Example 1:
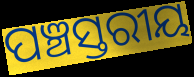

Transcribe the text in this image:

ପଞ୍ଚସ୍ତରୀୟ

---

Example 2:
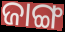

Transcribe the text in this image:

ଜାଙ୍ଗ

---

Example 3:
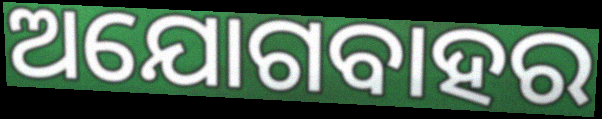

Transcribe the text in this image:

ଅଯୋଗବାହର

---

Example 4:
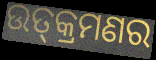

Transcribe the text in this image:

ଉତ୍‍କ୍ରମଣର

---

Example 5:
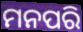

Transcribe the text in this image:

ମନପରି